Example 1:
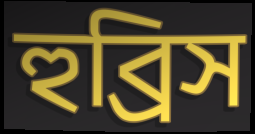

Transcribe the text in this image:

হুব্রিস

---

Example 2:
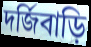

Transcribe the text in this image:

দর্জিবাড়ি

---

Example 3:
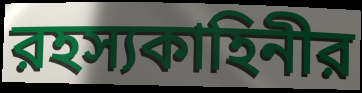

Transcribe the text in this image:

রহস্যকাহিনীর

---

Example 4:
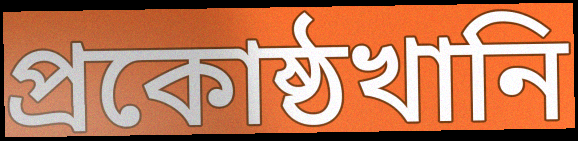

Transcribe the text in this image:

প্রকোষ্ঠখানি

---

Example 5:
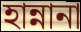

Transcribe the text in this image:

হান্নানা